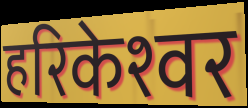
हरिकेश्वर